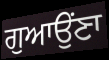
ਗੁਆਉਂਣਾ